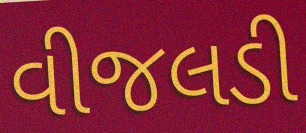
વીજલડી